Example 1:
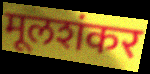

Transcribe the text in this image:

मूलशंकर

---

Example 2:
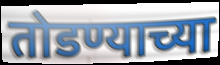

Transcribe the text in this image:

तोडण्याच्या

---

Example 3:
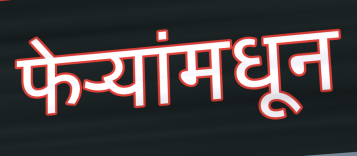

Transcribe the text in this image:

फेऱ्यांमधून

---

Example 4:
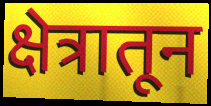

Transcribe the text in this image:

क्षेत्रातून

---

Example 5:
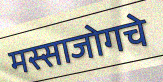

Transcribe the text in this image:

मस्साजोगचे